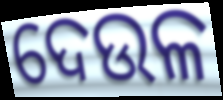
ଦେଉଳ